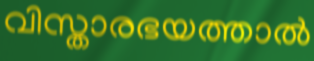
വിസ്താരഭയത്താൽ